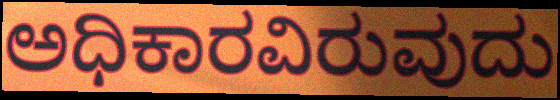
ಅಧಿಕಾರವಿರುವುದು